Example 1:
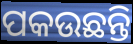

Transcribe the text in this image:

ପକଉଛନ୍ତି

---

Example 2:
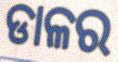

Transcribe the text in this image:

ଡାଳର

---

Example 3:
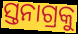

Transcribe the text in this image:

ସ୍ତନାଗ୍ରକୁ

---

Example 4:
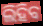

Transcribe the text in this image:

ଲିହିବ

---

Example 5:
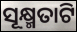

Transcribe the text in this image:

ସୂକ୍ଷ୍ମତାଟି